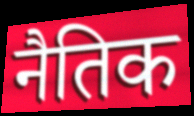
नैतिक